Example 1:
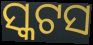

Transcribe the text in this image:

ସ୍କଟସ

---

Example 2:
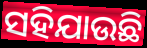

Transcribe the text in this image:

ସହିଯାଉଛି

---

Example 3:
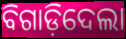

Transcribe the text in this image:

ବିଗାଡ଼ିଦେଲା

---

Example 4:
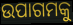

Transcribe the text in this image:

ଉପାଗମକୁ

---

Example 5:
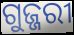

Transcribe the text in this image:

ଗୁଜ୍ଜରୀ